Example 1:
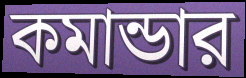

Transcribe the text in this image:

কমান্ডার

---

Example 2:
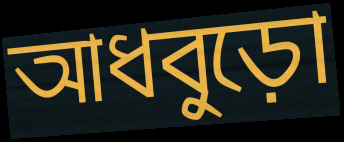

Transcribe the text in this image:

আধবুড়ো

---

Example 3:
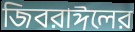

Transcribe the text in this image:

জিবরাঈলের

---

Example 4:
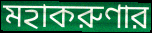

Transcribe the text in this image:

মহাকরুণার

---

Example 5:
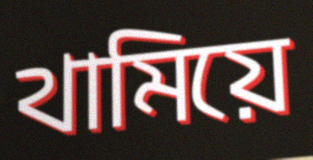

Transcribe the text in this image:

থামিয়ে